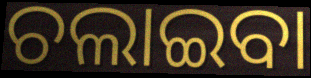
ଚଲାଇବା